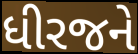
ધીરજને